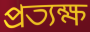
প্ৰত্যক্ষ